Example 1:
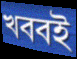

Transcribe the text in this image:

খববই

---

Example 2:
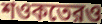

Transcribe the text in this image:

শওকতেরও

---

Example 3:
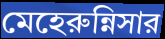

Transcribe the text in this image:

মেহেরুন্নিসার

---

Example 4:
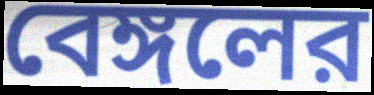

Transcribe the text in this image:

বেঙ্গলের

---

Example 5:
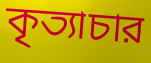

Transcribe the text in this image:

কৃত্যাচার